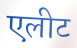
एलीट